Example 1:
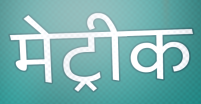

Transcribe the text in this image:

मेट्रीक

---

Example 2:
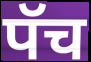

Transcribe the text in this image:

पॅच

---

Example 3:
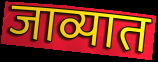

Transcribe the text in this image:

जाव्यात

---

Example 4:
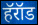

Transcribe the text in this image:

हॅरॉड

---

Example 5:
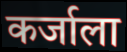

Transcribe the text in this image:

कर्जाला